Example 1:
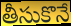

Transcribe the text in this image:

తీసుకొనే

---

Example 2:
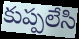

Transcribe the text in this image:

కుప్పలేసి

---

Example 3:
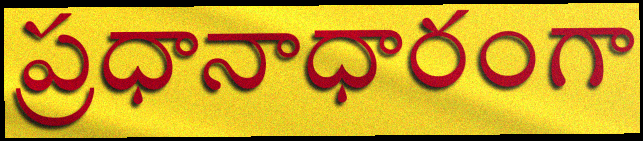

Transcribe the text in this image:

ప్రధానాధారంగా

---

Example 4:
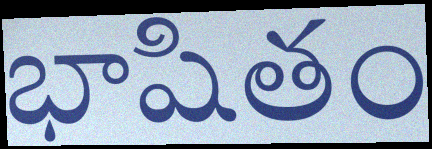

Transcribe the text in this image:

భాషితం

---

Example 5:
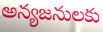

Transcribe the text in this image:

అన్యజనులకు